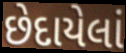
છેદાયેલાં